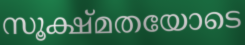
സൂക്ഷ്മതയോടെ